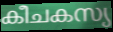
കീചകസ്യ